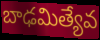
బాఢమిత్యేవ